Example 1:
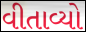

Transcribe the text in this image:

વીતાવ્યો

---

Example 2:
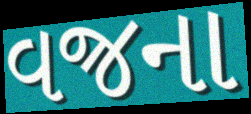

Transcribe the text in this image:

વજ્રના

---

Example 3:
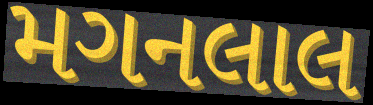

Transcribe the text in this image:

મગનલાલ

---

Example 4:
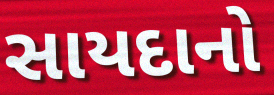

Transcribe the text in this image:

સાયદાનો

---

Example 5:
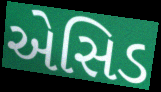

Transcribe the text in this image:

એસિડ